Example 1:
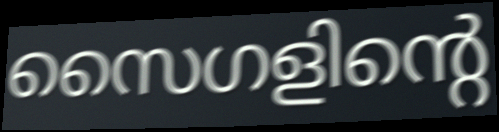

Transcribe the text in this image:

സൈഗളിന്റെ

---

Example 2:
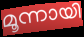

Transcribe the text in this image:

മൂന്നായി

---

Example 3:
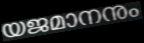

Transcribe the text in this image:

യജമാനനും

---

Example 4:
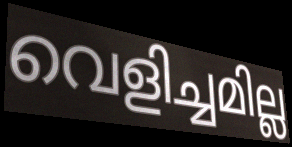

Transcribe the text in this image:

വെളിച്ചമില്ല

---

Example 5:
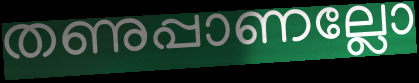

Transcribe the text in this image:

തണുപ്പാണല്ലോ